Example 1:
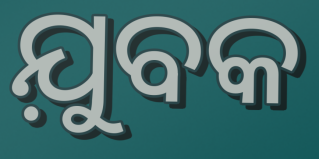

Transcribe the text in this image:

ଯ଼ୁବକ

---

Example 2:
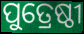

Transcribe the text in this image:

ପୁତ୍ରେଷ୍ଠୀ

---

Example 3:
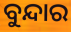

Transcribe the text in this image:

ବୁନ୍ଦାର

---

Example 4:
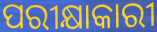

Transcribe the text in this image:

ପରୀକ୍ଷାକାରୀ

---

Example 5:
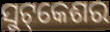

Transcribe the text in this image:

ସୁଟ୍‌କେଶର